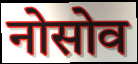
नोसोव